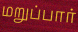
மறுப்பார்